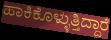
ಹಾಕಿಕೊಳ್ಳುತ್ತಿದ್ದಾರೆ